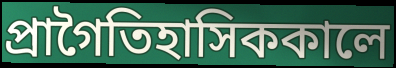
প্রাগৈতিহাসিককালে